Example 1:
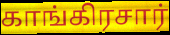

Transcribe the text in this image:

காங்கிரசார்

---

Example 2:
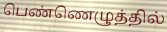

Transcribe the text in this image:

பெண்ணெழுத்தில்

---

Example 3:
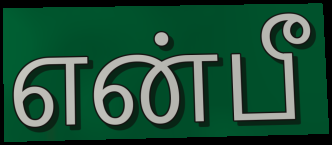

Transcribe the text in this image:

என்பீ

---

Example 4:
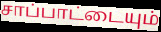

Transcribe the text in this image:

சாப்பாட்டையும்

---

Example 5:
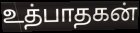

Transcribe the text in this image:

உத்பாதகன்